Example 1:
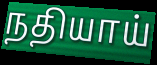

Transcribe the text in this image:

நதியாய்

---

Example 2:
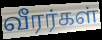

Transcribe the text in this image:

வீரர்கள்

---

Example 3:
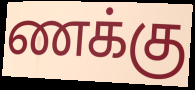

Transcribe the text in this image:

ணக்கு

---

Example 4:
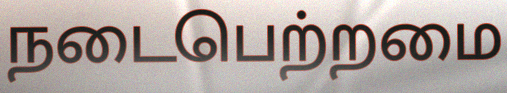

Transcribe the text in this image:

நடைபெற்றமை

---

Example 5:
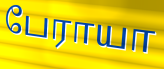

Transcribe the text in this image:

பேராயா